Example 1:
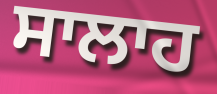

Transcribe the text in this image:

ਸਾਲਾਹ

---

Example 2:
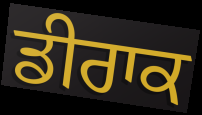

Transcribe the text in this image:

ਡੀਰਾਕ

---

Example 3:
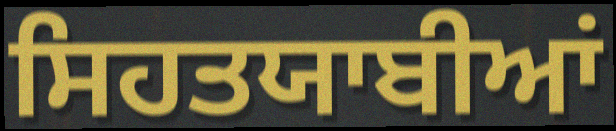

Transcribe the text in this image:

ਸਿਹਤਯਾਬੀਆਂ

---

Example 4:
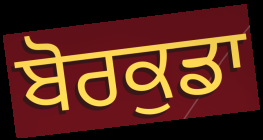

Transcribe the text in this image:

ਬੋਰਕੁਡਾ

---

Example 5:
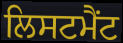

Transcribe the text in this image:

ਲਿਸਟਮੈਂਟ